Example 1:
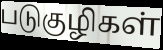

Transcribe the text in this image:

படுகுழிகள்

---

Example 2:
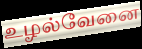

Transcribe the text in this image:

உழல்வேனை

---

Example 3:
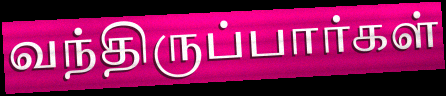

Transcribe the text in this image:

வந்திருப்பார்கள்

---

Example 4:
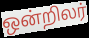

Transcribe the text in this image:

ஒன்றிலர்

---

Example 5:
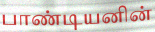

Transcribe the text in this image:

பாண்டியனின்